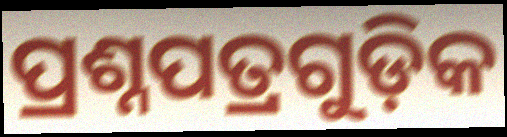
ପ୍ରଶ୍ନପତ୍ରଗୁଡ଼ିକ